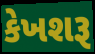
કેખશરૂ